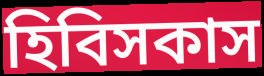
হিবিসকাস